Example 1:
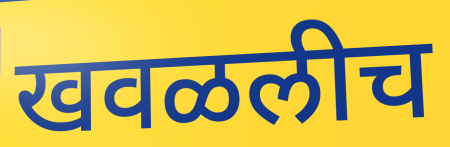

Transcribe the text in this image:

खवळलीच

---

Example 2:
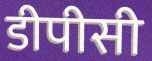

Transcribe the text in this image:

डीपीसी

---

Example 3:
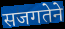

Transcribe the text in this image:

सजगतेने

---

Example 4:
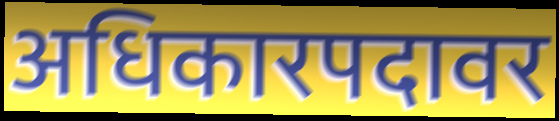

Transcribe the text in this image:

अधिकारपदावर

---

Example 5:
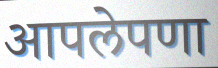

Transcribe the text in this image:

आपलेपणा